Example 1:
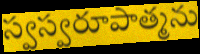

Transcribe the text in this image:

స్వస్వరూపాత్మను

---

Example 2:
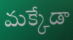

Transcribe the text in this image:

మక్కేడా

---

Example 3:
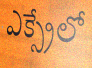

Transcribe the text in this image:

ఎక్స్రేలో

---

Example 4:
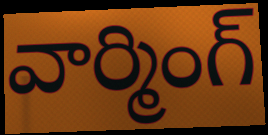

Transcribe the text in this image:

వార్మింగ్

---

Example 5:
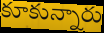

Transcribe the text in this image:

కూకున్నారు